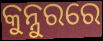
କୁନ୍ନୁରରେ